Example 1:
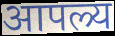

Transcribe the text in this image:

आपल्य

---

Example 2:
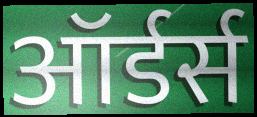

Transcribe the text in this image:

ऑर्डर्स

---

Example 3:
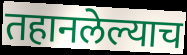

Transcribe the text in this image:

तहानलेल्याच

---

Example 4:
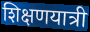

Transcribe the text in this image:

शिक्षणयात्री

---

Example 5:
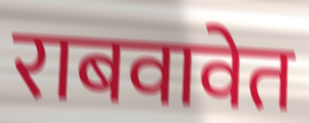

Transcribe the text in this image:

राबवावेत